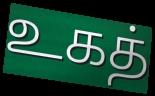
உகத்